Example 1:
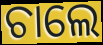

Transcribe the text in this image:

ଚାଲେ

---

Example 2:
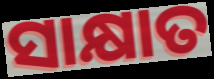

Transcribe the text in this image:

ସାକ୍ଷାତ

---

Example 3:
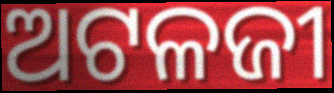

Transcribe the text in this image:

ଅଟଳଜୀ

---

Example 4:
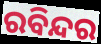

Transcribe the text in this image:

ରବିନ୍ଦର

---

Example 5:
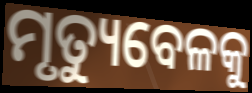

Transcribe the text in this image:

ମୃତ୍ୟୁବେଳକୁ